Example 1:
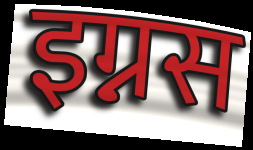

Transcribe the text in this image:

इग्नस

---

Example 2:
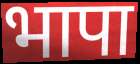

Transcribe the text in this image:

भापा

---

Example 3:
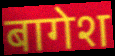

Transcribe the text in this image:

बागेश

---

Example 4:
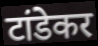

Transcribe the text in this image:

टांडेकर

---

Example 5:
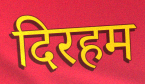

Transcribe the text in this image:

दिरहम